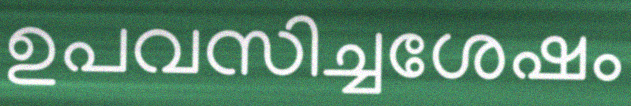
ഉപവസിച്ചശേഷം